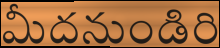
మీదనుండిరి